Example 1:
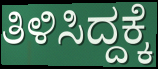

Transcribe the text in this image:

ತಿಳಿಸಿದ್ದಕ್ಕೆ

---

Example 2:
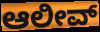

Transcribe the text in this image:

ಆಲೀವ್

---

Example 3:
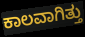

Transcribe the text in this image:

ಕಾಲವಾಗಿತ್ತು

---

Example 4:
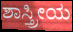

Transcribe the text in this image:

ಶಾಸ್ತ್ರೀಯ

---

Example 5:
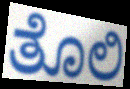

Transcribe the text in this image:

ತೊಲಿ